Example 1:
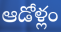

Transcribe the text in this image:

ఆడోళ్లం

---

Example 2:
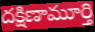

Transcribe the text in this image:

దక్షిణామూర్తి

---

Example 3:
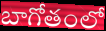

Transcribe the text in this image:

బాగోతంలో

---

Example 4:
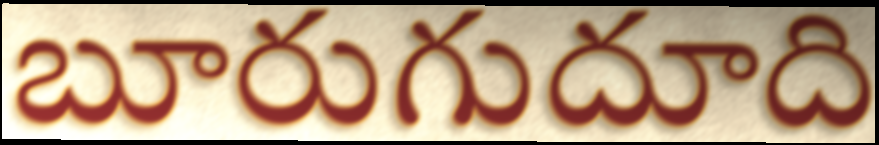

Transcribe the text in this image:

బూరుగుదూది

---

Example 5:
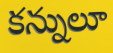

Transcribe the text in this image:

కన్నులూ